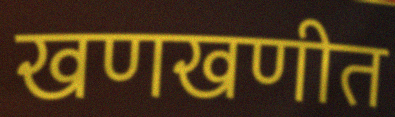
खणखणीत